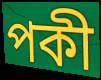
পকী